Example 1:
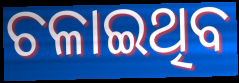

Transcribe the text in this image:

ଚଳାଇଥିବ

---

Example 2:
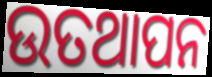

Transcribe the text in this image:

ଉତଥାପନ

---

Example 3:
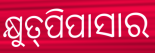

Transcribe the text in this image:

କ୍ଷୁତ୍‍ପିପାସାର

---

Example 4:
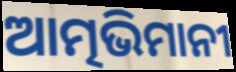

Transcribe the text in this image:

ଆତ୍ମଭିମାନୀ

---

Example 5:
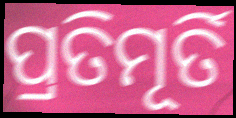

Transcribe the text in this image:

ପ୍ରତିମୂର୍ତି